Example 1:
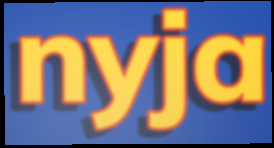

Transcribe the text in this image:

nyja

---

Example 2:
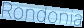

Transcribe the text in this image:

Rondonia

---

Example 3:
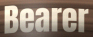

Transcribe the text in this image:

Bearer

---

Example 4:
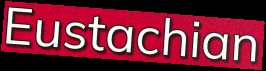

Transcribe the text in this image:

Eustachian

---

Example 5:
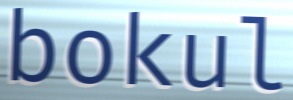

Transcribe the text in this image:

bokul